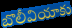
బొలీవియాకు